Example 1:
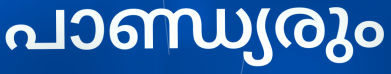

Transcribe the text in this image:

പാണ്ഡ്യരും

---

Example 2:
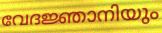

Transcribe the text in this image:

വേദജ്ഞാനിയും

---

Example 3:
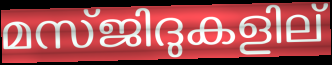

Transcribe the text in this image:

മസ്ജിദുകളില്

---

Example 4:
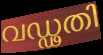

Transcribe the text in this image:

വഡ്ഢതി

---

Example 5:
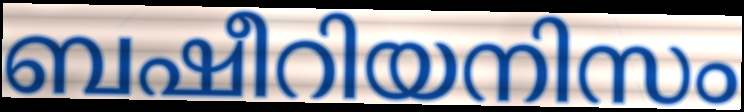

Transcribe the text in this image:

ബഷീറിയനിസം